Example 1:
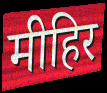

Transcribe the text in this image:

मीहिर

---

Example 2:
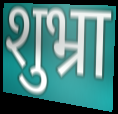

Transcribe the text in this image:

शुभ्रा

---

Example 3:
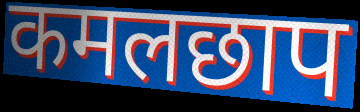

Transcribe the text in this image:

कमलछाप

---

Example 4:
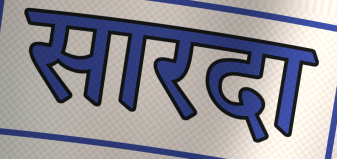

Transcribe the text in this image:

सारदा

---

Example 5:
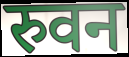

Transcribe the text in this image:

रुवन